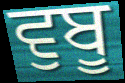
ਵੁਬੂ